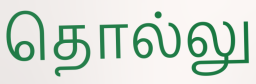
தொல்லு